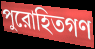
পুরোহিতগণ